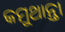
କମୁଥାନ୍ତା